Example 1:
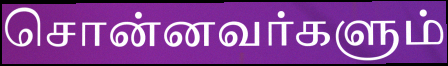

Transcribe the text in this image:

சொன்னவர்களும்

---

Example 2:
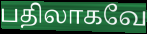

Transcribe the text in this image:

பதிலாகவே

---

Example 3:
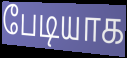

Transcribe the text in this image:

பேடியாக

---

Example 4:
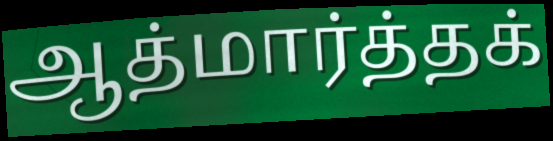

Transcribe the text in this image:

ஆத்மார்த்தக்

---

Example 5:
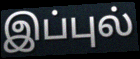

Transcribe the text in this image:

இப்புல்